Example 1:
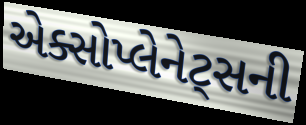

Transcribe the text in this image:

એક્સોપ્લેનેટ્સની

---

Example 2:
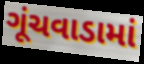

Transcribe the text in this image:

ગૂંચવાડામાં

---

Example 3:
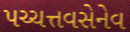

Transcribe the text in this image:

પચ્ચત્તવસેનેવ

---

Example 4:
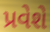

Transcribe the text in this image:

પ્રવેશે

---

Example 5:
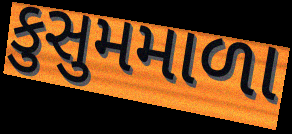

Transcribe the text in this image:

કુસુમમાળા